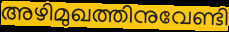
അഴിമുഖത്തിനുവേണ്ടി